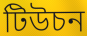
টিউচন